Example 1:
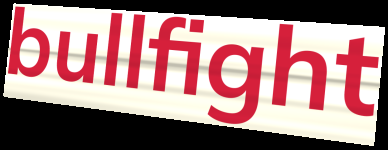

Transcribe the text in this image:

bullfight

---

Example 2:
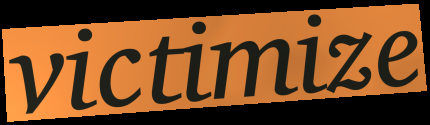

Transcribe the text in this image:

victimize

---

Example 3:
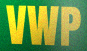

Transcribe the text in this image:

VWP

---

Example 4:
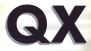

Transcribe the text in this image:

QX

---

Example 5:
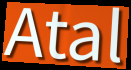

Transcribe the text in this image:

Atal